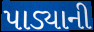
પાડ્યાની